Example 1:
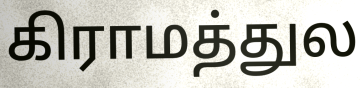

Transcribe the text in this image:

கிராமத்துல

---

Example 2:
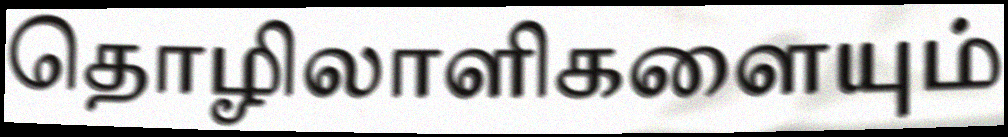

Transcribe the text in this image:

தொழிலாளிகளையும்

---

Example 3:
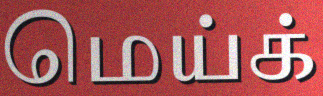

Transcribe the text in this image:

மெய்க்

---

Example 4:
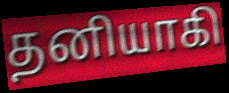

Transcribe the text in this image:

தனியாகி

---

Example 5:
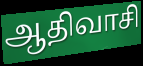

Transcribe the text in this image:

ஆதிவாசி